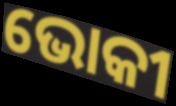
ଭୋକୀ